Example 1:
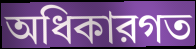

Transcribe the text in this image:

অধিকারগত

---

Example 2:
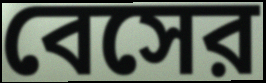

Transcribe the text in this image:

বেসের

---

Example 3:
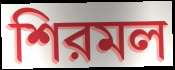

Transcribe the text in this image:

শিরমল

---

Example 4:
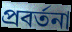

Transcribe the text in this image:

প্রবর্তনা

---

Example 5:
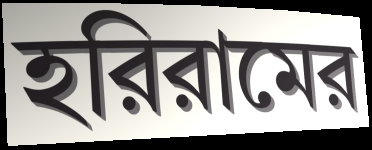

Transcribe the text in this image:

হরিরামের